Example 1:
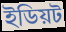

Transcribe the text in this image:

ইডিয়ট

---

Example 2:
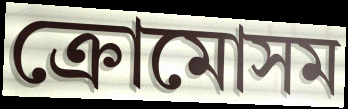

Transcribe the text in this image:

ক্রোমোসম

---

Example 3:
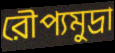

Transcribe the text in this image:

রৌপ্যমুদ্রা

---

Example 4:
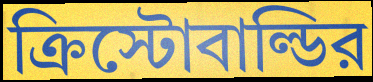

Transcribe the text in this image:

ক্রিস্টোবাল্ডির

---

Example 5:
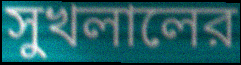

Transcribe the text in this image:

সুখলালের